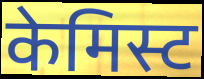
केमिस्ट